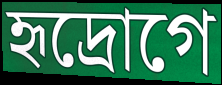
হৃদ্রোগে